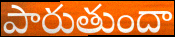
పారుతుందా